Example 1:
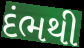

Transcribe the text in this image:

દંભથી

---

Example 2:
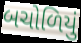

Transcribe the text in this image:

બચોળિયું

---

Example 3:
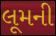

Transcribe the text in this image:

લૂમની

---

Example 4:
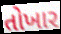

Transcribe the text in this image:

તોખાર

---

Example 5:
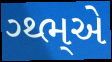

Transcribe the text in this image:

ગ્થ્ભ્એ